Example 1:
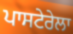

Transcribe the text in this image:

ਪਾਸਟੇਰੇਲਾ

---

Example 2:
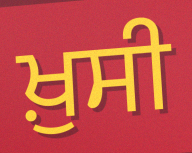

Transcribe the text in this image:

ਖ਼ੁਸੀ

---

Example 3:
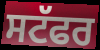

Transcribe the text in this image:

ਸਟੱਫਰ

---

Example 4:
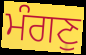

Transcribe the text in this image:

ਮੰਗਣੁ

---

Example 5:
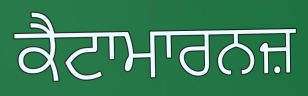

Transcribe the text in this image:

ਕੈਟਾਮਾਰਨਜ਼